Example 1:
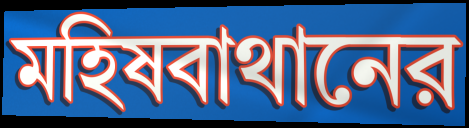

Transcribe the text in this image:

মহিষবাথানের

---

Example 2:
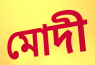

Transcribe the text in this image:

মোদী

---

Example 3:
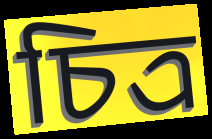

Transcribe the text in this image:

চিত্র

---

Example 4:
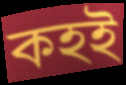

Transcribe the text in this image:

কহই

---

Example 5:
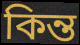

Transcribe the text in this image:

কিন্ত